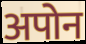
अपोन